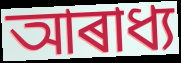
আৰাধ্য